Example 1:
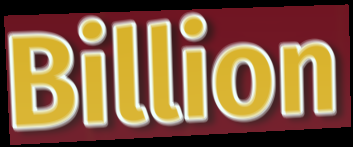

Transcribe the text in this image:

Billion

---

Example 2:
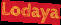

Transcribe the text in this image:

Lodaya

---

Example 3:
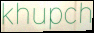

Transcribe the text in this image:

khupch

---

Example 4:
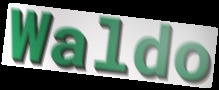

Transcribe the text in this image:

Waldo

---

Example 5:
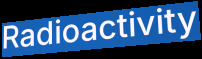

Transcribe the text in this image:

Radioactivity